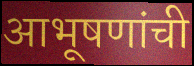
आभूषणांची